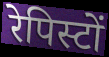
रेपिस्टों